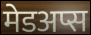
मेडअप्स